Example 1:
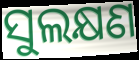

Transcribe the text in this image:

ସୁଲକ୍ଷଣ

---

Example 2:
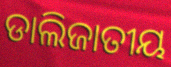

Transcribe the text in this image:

ଡାଲିଜାତୀୟ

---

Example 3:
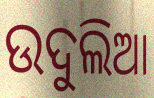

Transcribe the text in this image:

ଉଦୁଲିଆ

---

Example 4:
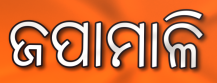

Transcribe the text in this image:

ଜପାମାଳି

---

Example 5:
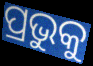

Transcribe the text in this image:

ପ୍ରଭୁକୁ